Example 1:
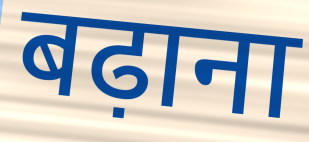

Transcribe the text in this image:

बढ़ाना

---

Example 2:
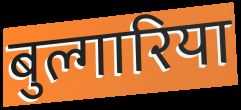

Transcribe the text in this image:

बुल्गारिया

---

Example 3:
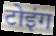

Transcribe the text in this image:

टोइंग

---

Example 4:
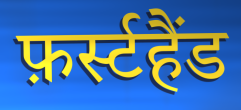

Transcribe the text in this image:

फ़र्स्टहैंड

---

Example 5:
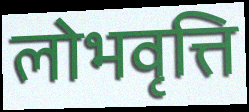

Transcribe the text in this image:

लोभवृत्ति